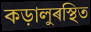
কড়ালুৰস্থিত